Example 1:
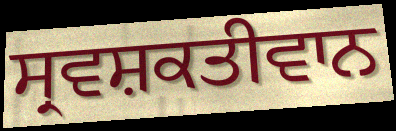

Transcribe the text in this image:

ਸ੍ਰਵਸ਼ਕਤੀਵਾਨ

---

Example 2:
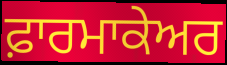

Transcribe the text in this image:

ਫ਼ਾਰਮਾਕੇਅਰ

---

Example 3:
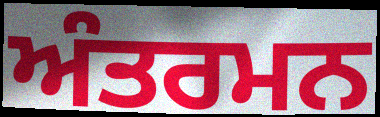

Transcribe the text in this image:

ਅੰਤਰਮਨ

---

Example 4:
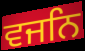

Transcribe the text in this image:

ਵਜਨਿ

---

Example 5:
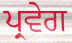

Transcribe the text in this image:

ਪ੍ਰਵੇਗ